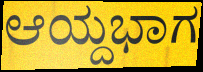
ಆಯ್ದಭಾಗ